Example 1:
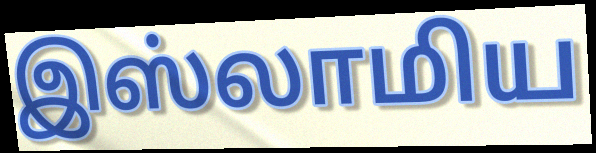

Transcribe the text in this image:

இஸ்லாமிய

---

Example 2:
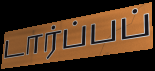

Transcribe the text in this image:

டார்ப்பப்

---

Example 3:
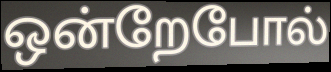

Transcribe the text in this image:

ஒன்றேபோல்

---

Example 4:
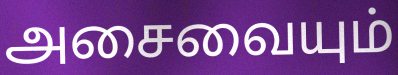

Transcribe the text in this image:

அசைவையும்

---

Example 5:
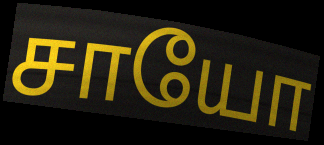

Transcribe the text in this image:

சாயோ